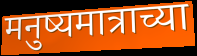
मनुष्यमात्राच्या